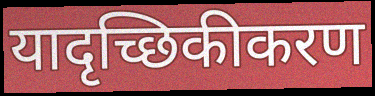
यादृच्छिकीकरण